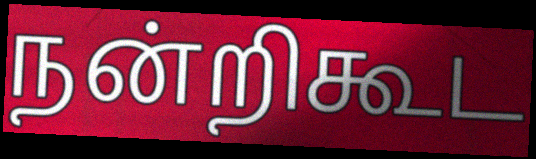
நன்றிகூட